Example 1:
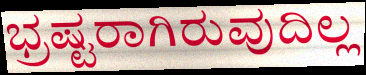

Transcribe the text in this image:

ಭ್ರಷ್ಟರಾಗಿರುವುದಿಲ್ಲ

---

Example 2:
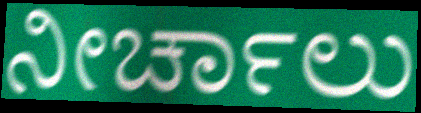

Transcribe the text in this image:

ನೀರ್ಚಾಲು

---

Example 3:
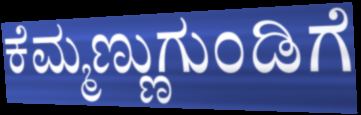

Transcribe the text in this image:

ಕೆಮ್ಮಣ್ಣುಗುಂಡಿಗೆ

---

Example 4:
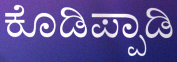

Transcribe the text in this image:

ಕೊಡಿಪ್ಪಾಡಿ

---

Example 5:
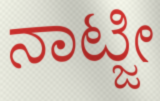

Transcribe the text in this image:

ನಾಟ್ಜೀ